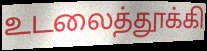
உடலைத்தூக்கி